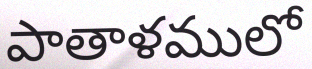
పాతాళములో